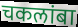
चकलांबा